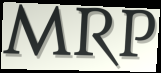
MRP